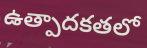
ఉత్పాదకతలో